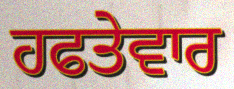
ਹਫਤੇਵਾਰ